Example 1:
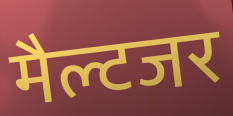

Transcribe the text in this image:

मैल्टजर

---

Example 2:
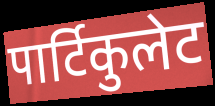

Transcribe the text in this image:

पार्टिकुलेट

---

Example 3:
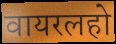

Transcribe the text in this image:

वायरलहो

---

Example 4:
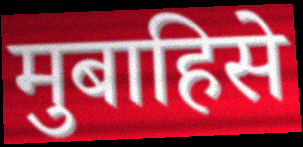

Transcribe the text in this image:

मुबाहिसे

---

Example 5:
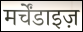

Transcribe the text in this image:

मर्चेंडाइज़